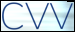
CVV